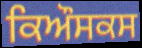
ਕਿਔਸਕਸ